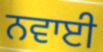
ਨਵਾਈ